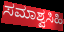
ಸಮಾಶ್ವಸಿಹಿ